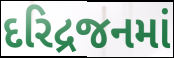
દરિદ્રજનમાં